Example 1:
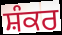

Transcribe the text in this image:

ਸ਼ੰਕਰ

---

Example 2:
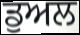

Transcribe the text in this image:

ਡੁਅਲ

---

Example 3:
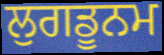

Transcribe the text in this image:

ਲੁਗਡੂਨਮ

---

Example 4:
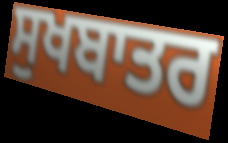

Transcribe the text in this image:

ਸੁਖਬਾਤਰ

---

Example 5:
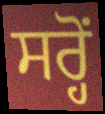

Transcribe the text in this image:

ਸਰ੍ਹੋਂ